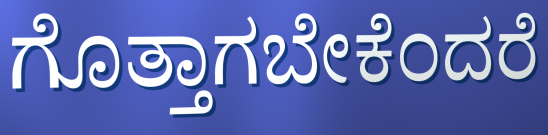
ಗೊತ್ತಾಗಬೇಕೆಂದರೆ